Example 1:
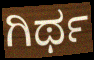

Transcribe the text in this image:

ಗಿರ್ಥ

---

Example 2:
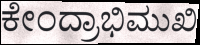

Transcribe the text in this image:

ಕೇಂದ್ರಾಭಿಮುಖಿ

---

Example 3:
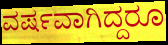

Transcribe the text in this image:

ವರ್ಷವಾಗಿದ್ದರೂ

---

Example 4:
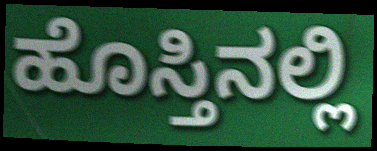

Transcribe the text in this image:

ಹೊಸ್ತಿನಲ್ಲಿ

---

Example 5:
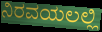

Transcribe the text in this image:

ನಿರವಯಲಲ್ಲಿ